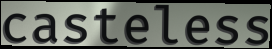
casteless